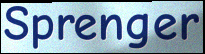
Sprenger